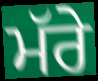
ਮੱਰੇ